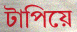
টাপিয়ে